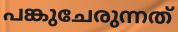
പങ്കുചേരുന്നത്